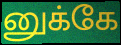
னுக்கே